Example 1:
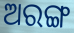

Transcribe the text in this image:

ଅରଙ୍ଗ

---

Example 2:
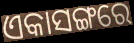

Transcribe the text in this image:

ଏକାସଙ୍ଗରେ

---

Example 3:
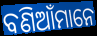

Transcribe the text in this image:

ବଣିଆଁମାନେ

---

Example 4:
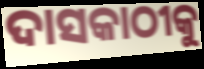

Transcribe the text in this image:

ଦାସକାଠୀକୁ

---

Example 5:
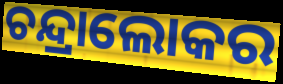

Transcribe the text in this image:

ଚନ୍ଦ୍ରାଲୋକର